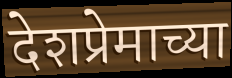
देशप्रेमाच्या